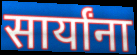
सार्यांना